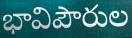
భావిపౌరుల